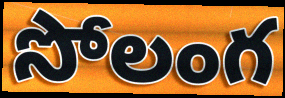
సోలంగ